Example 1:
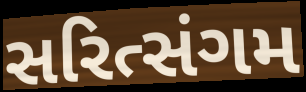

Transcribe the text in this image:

સરિત્સંગમ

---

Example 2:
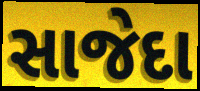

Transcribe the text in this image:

સાજેદા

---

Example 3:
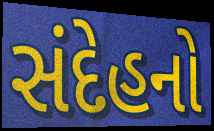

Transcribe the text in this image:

સંદેહનો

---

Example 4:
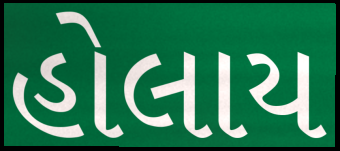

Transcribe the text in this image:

હોલાય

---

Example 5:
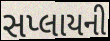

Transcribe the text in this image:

સપ્લાયની